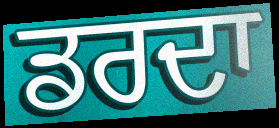
ਡਰਦਾ